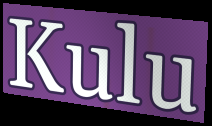
Kulu